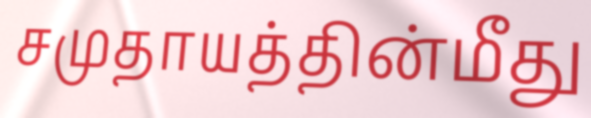
சமுதாயத்தின்மீது